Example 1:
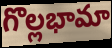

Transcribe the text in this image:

గొల్లభామా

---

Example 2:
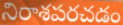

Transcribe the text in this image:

నిరాశపరచడం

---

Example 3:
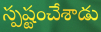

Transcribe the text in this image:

స్పష్టంచేశాడు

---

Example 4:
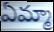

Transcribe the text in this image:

ఏమ్మా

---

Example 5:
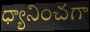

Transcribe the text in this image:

ధ్యానించగా